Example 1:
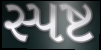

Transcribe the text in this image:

સ્પષ્ટ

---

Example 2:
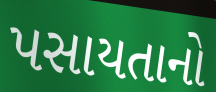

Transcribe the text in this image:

પસાયતાનો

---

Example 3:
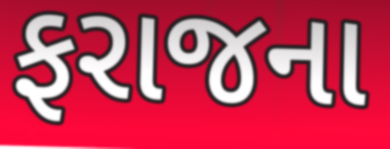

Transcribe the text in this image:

ફરાજના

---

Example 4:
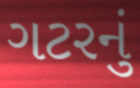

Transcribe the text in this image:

ગટરનું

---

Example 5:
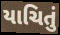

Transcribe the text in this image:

યાચિતું